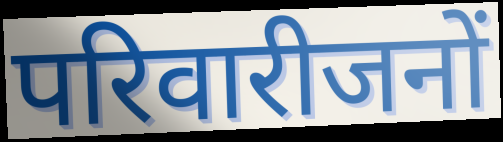
परिवारीजनों